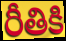
రీతికి